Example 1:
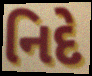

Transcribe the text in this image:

નિદે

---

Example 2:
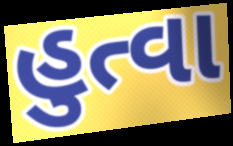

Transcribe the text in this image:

હુત્વા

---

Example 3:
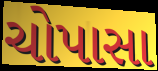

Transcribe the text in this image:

ચોપાસા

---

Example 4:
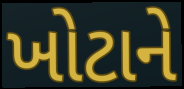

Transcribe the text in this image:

ખોટાને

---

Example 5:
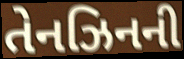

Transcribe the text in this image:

તેનઝિનની